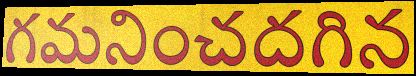
గమనించదగిన